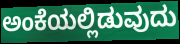
ಅಂಕೆಯಲ್ಲಿಡುವುದು